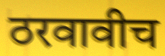
ठरवावीच